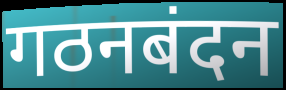
गठनबंदन